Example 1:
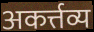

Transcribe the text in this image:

अकर्त्तव्य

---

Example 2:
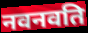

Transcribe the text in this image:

नवनवति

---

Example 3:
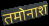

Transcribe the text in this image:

तमोनाश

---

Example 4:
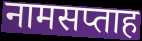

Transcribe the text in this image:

नामसप्ताह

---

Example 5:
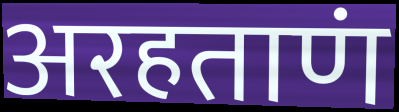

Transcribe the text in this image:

अरहताणं